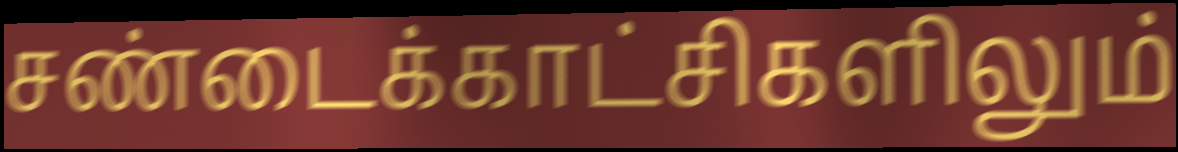
சண்டைக்காட்சிகளிலும்